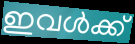
ഇവൾക്ക്